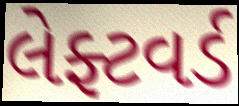
લેફ્ટવર્ડ